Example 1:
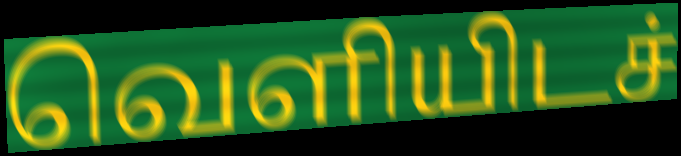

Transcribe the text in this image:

வெளியிடச்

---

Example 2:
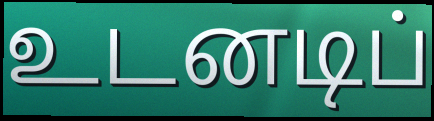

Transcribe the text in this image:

உடனடிப்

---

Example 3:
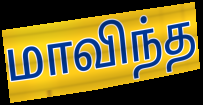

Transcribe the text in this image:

மாவிந்த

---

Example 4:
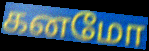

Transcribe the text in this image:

கனமோ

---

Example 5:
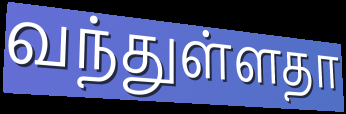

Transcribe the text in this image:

வந்துள்ளதா